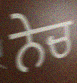
ਨੇਚ